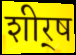
शीर्ष